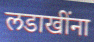
लडाखींना